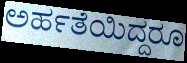
ಅರ್ಹತೆಯಿದ್ದರೂ